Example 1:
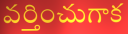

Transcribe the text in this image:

వర్తించుగాక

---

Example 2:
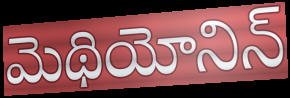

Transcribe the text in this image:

మెథియోనిన్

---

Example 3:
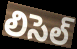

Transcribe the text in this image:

లిసెల్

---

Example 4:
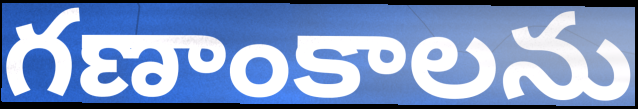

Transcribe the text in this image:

గణాంకాలను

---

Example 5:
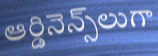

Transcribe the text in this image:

ఆర్డినెన్స్‌లుగా